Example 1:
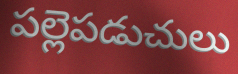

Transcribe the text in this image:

పల్లెపడుచులు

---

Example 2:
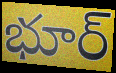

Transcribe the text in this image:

భూర్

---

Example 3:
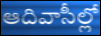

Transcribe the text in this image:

ఆదివాసీల్లో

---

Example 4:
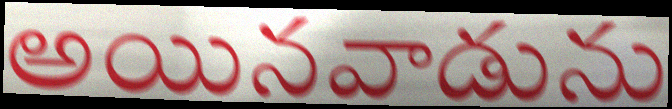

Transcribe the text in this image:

అయినవాడును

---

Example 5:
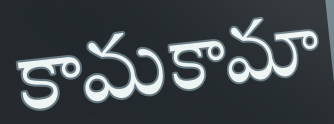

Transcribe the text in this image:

కామకామా